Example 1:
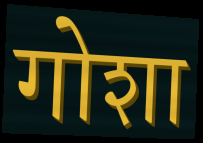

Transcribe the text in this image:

गोशा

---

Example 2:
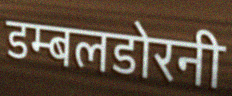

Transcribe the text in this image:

डम्बलडोरनी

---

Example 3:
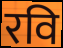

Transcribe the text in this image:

रवि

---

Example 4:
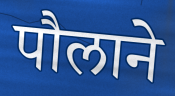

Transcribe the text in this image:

पौलाने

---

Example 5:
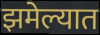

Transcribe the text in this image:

झमेल्यात